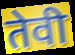
तेवी